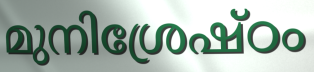
മുനിശ്രേഷ്ഠം